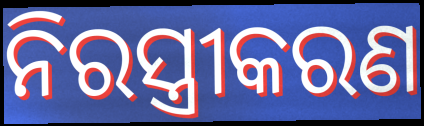
ନିରସ୍ତ୍ରୀକରଣ